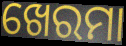
ଖେରମା